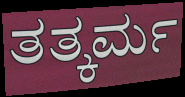
ತತ್ಕರ್ಮ